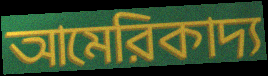
আমেরিকাদ্য